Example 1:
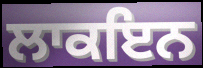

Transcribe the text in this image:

ਲਾਕਇਨ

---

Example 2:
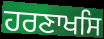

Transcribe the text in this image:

ਹਰਣਾਖਸਿ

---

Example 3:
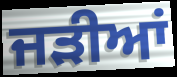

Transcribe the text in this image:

ਜੜੀਆਂ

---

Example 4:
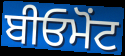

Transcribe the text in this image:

ਬੀਓਮੋਂਟ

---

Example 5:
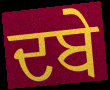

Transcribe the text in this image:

ਦਬੇ